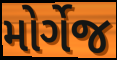
મોર્ગેજ